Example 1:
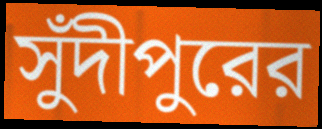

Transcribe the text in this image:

সুঁদীপুরের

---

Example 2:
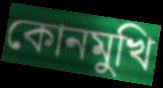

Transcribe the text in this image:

কোনমুখি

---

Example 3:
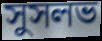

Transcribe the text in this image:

সুসলভ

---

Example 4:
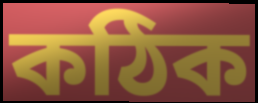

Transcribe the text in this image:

কঠিক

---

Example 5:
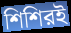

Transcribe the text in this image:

শিশিরই